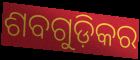
ଶବଗୁଡ଼ିକର